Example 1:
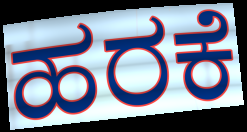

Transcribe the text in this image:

ಹರಕೆ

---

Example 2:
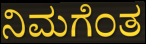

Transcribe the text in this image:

ನಿಮಗೆಂತ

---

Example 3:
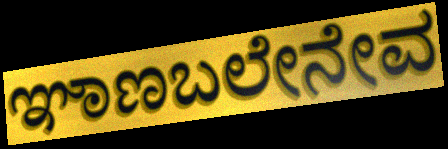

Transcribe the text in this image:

ಞಾಣಬಲೇನೇವ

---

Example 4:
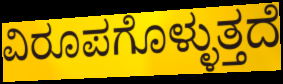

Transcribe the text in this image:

ವಿರೂಪಗೊಳ್ಳುತ್ತದೆ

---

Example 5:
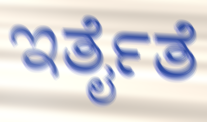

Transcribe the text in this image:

ಇರ್ತೈತೆ